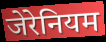
जेरेनियम